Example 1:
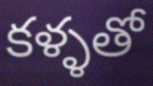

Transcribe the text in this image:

కళ్ళతో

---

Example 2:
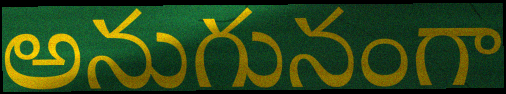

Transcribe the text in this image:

అనుగునంగా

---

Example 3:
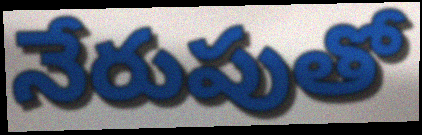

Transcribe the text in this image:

నేరుపుతో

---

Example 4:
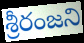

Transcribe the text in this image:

శ్రీరంజని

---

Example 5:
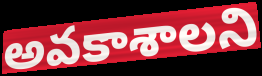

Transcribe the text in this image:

అవకాశాలని